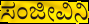
ಸಂಜೀವಿನಿ